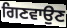
ਗਿਣਵਾਉਣ